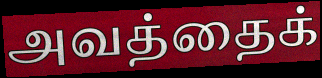
அவத்தைக்